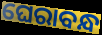
ଘେରାବନ୍ଧ